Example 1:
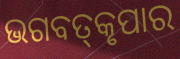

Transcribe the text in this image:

ଭଗବତ୍‌କୃପାର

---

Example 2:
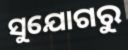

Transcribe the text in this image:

ସୁଯୋଗରୁ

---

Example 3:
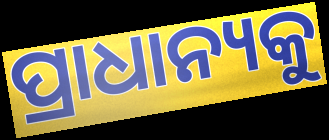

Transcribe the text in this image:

ପ୍ରାଧାନ୍ୟକୁ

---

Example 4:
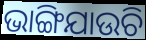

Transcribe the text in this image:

ଭାଙ୍ଗିଯାଉଚି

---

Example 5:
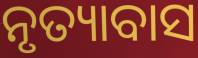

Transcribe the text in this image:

ନୃତ୍ୟାବାସ